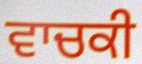
ਵਾਚਕੀ